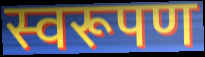
स्वरूपण